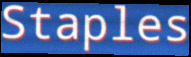
Staples